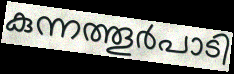
കുന്നത്തൂർപാടി